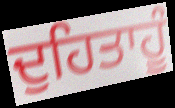
ਦੁਹਿਤਾਹੂੰ